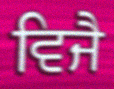
ਵਿਜੈ